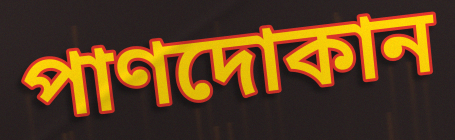
পাণদোকান